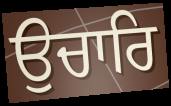
ਉਚਾਰਿ